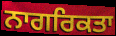
ਨਾਗਰਿਕਤਾ